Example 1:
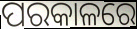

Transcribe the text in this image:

ପରକାଳରେ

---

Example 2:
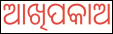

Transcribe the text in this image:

ଆଖିପକାଅ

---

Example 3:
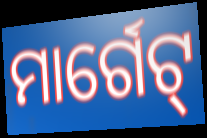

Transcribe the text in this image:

ମାର୍ଗେଟ୍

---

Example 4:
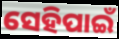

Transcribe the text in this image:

ସେହିପାଇଁ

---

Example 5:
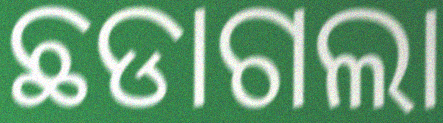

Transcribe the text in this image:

ଛଡାଗଲା